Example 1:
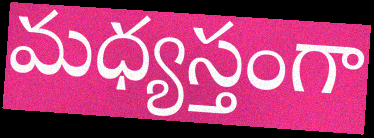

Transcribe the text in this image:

మధ్యస్తంగా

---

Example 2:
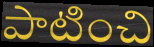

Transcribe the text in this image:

పాటించి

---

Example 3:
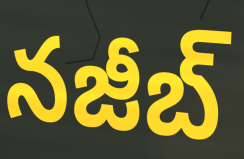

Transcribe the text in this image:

నజీబ్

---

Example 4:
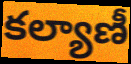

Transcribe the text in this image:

కల్యాణీ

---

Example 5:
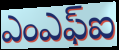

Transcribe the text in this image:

ఎంఎఫ్ఐ